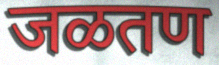
जळतण